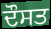
ਦੌਸਤ